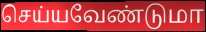
செய்யவேண்டுமா